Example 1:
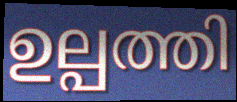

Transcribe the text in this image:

ഉല്പത്തി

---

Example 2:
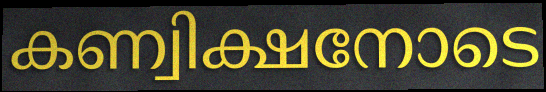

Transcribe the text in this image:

കണ്വിക്ഷനോടെ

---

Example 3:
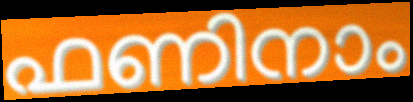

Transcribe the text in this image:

ഫണിനാം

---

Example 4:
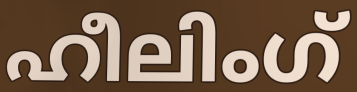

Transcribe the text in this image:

ഹീലിംഗ്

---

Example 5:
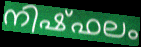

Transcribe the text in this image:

നിഷ്ഫലം